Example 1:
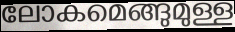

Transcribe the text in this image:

ലോകമെങ്ങുമുള്ള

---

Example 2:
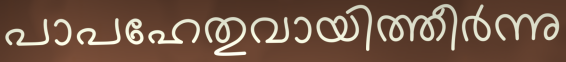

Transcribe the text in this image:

പാപഹേതുവായിത്തീർന്നു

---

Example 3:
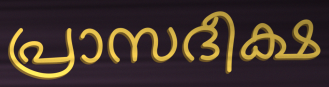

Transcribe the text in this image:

പ്രാസദീക്ഷ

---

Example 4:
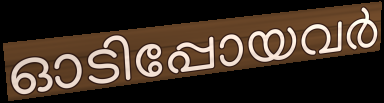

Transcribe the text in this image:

ഓടിപ്പോയവർ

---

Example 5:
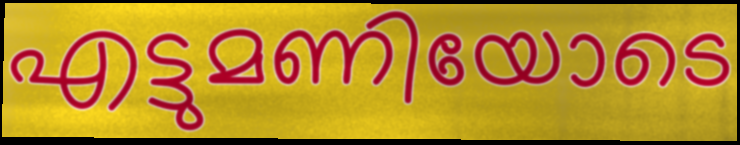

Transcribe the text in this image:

എട്ടുമണിയോടെ